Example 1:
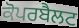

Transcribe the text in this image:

ਕੋਪਰਬੈਲਟ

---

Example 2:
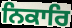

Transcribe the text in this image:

ਨਿਕਾਰਿ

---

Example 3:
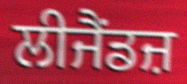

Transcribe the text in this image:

ਲੀਜੈਂਡਜ਼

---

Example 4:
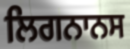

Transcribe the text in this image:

ਲਿਗਨਾਨਸ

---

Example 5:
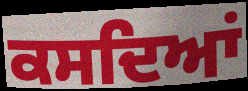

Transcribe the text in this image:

ਕਸਦਿਆਂ